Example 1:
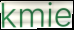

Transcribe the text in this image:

kmie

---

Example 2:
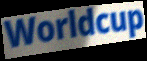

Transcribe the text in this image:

Worldcup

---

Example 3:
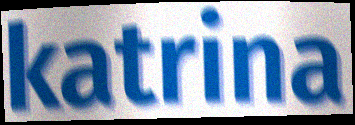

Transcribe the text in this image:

katrina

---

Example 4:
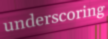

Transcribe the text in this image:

underscoring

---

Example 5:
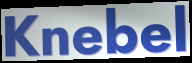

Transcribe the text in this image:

Knebel